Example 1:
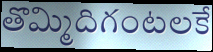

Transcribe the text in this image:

తొమ్మిదిగంటలకే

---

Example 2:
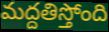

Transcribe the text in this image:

మద్దతిస్తోంది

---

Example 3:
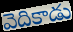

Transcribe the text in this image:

వెదికాడు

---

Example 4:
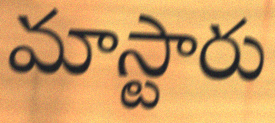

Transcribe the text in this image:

మాస్టారు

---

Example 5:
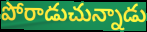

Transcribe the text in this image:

పోరాడుచున్నాడు